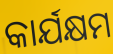
କାର୍ଯକ୍ଷମ